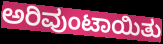
ಅರಿವುಂಟಾಯಿತು